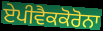
ਏਪੀਵੈਕਕੋਰੋਨਾ